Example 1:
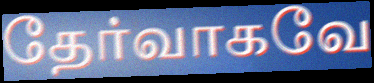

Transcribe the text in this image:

தேர்வாகவே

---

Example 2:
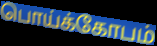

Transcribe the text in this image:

பொய்க்கோபம்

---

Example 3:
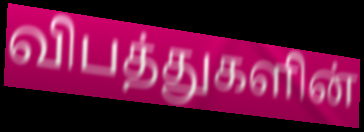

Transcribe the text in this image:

விபத்துகளின்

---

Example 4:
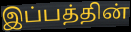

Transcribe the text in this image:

இப்பத்தின்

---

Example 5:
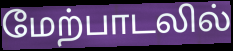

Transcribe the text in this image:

மேற்பாடலில்